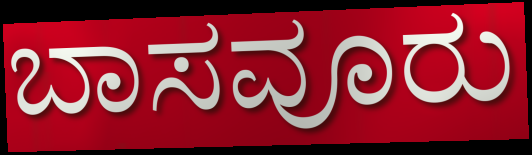
ಬಾಸವೂರು